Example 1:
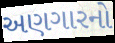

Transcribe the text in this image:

અણગારનો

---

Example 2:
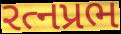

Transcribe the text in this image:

રત્નપ્રભ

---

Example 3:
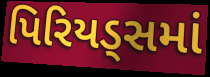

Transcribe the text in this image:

પિરિયડ્સમાં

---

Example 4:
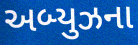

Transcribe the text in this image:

અબ્યુઝના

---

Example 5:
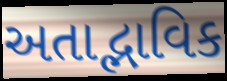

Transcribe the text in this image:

અતાદ્ભાવિક